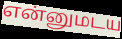
என்னுமடய